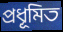
প্রধূমিত